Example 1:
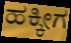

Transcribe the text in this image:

ಹಕ್ಕೀಗ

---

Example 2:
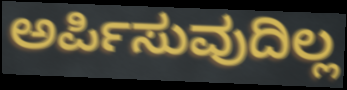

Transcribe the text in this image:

ಅರ್ಪಿಸುವುದಿಲ್ಲ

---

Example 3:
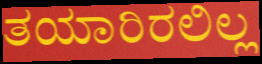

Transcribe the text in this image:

ತಯಾರಿರಲಿಲ್ಲ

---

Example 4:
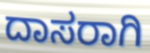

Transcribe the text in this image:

ದಾಸರಾಗಿ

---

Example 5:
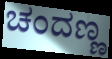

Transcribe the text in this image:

ಚಂದಣ್ಣ